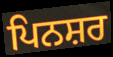
ਪਿਨਸ਼ਰ